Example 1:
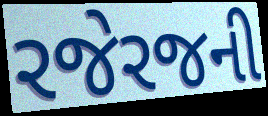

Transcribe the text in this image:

રજેરજની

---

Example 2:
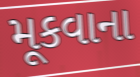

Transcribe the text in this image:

મૂકવાના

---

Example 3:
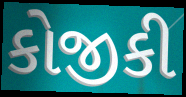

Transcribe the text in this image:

કોજીકી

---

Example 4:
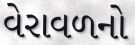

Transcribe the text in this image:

વેરાવળનો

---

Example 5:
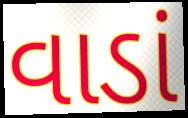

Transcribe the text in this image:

વાડાં